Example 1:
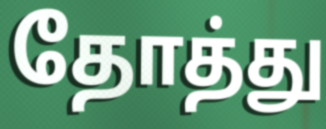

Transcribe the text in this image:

தோத்து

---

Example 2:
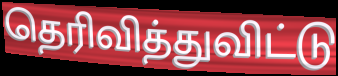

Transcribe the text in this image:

தெரிவித்துவிட்டு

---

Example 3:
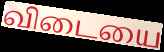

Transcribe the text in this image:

விடையை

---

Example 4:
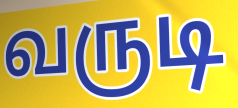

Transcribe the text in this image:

வருடி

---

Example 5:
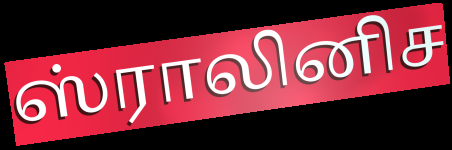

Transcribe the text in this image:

ஸ்ராலினிச